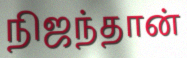
நிஜந்தான்